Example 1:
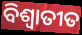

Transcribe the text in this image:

ବିଶ୍ଵାତୀତ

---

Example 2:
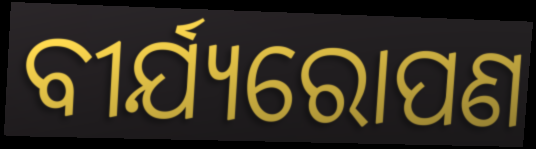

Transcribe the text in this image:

ବୀର୍ଯ୍ୟରୋପଣ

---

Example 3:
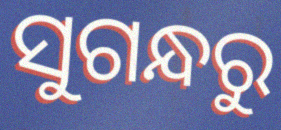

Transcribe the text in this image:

ସୁଗନ୍ଧରୁ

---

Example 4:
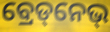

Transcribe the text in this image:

ବ୍ରେଡ୍‌ନେଭ୍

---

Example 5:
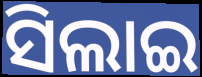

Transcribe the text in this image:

ସିଲାଇ